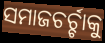
ସମାଜଚର୍ଚ୍ଚାକୁ